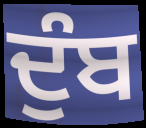
ਦੁੰਬ